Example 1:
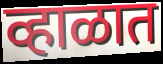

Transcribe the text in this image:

व्हाळात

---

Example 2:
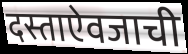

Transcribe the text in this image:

दस्ताऐवजाची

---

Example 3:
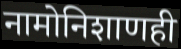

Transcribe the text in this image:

नामोनिशाणही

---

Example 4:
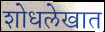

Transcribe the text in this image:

शोधलेखात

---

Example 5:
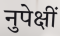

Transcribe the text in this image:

नुपेक्षीं